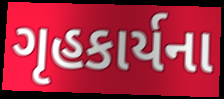
ગૃહકાર્યના